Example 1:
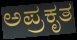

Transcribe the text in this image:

ಅಪ್ರಕೃತ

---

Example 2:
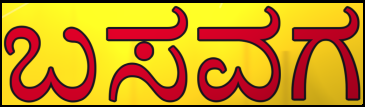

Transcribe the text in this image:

ಬಸವಗ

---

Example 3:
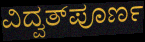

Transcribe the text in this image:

ವಿದ್ವತ್‌ಪೂರ್ಣ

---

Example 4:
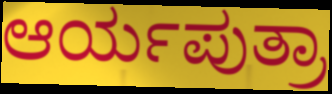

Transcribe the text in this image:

ಆರ್ಯಪುತ್ರಾ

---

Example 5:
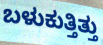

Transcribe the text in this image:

ಬಳುಕುತ್ತಿತ್ತು